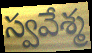
స్వవేశ్మ